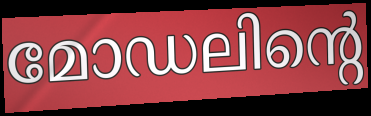
മോഡലിന്റെ